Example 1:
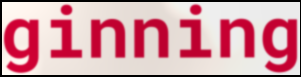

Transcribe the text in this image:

ginning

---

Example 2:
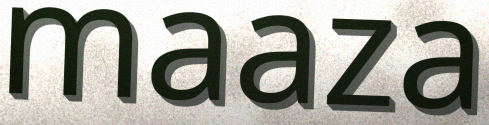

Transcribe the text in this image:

maaza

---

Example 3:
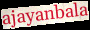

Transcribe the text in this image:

ajayanbala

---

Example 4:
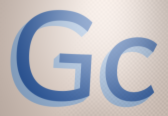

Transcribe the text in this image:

Gc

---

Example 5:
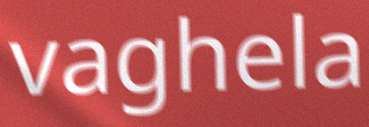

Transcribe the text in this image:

vaghela